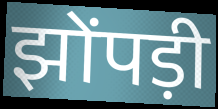
झोंपड़ी